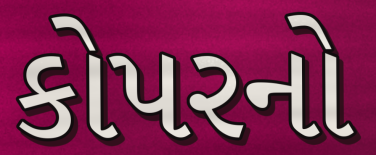
કોપરનો